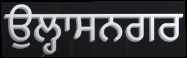
ਉਲ੍ਹਾਸਨਗਰ